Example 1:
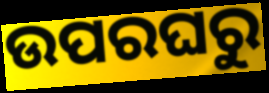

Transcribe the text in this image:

ଉପରଘରୁ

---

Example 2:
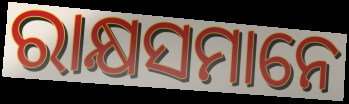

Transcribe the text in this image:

ରାକ୍ଷସମାନେ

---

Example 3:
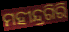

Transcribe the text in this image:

ମହୀନ୍ଦ୍ରଗିରି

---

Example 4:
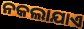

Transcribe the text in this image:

ନକଲାଯାଏ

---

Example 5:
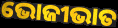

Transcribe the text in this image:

ଭୋଜୀଭାତ